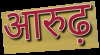
आरुढ़